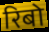
रिबो